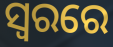
ସ୍ୱରରେ